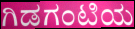
ಗಿಡಗಂಟಿಯ